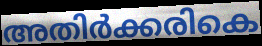
അതിർക്കരികെ